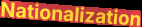
Nationalization